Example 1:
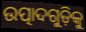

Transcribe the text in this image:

ଉତ୍ପାଦଗୁଡ଼ିକୁ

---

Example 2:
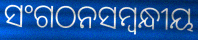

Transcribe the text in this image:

ସଂଗଠନସମ୍ବନ୍ଧୀୟ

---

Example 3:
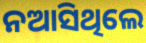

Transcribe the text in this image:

ନଆସିଥିଲେ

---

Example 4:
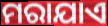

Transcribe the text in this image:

ମରାଯାଏ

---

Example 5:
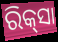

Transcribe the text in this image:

ରିକ୍‌ସା